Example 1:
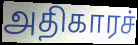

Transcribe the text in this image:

அதிகாரச்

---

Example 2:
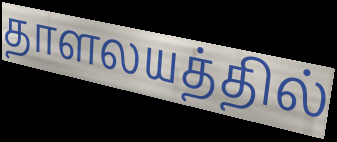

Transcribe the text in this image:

தாளலயத்தில்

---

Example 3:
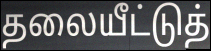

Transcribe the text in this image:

தலையீட்டுத்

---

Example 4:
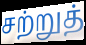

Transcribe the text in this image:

சற்றுத்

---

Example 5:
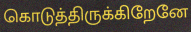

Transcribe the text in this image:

கொடுத்திருக்கிறேனே